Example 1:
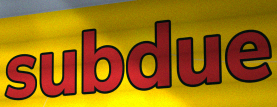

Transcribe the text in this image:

subdue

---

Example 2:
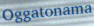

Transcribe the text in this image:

Oggatonama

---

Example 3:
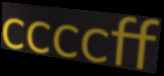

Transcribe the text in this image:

ccccff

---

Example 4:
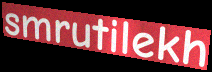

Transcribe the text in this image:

smrutilekh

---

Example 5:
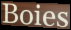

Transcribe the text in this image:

Boies